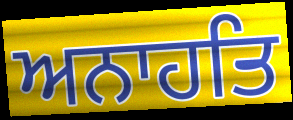
ਅਨਾਹਤਿ